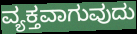
ವ್ಯಕ್ತವಾಗುವುದು